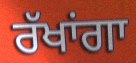
ਰੱਖਾਂਗਾ